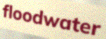
floodwater